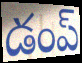
డంప్